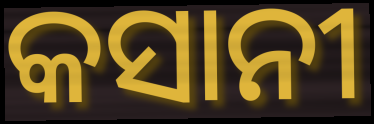
କସାନୀ